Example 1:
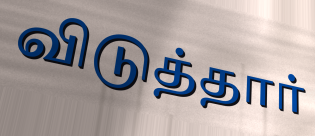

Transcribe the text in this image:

விடுத்தார்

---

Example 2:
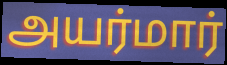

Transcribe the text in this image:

அயர்மார்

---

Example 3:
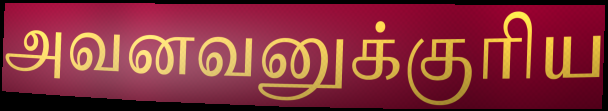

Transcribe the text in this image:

அவனவனுக்குரிய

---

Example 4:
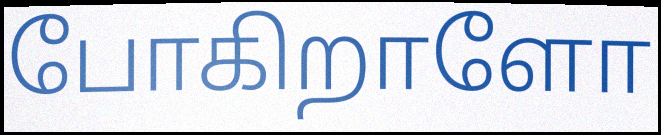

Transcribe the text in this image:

போகிறாளோ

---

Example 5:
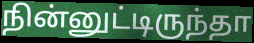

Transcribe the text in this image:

நின்னுட்டிருந்தா